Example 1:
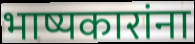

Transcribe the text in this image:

भाष्यकारांना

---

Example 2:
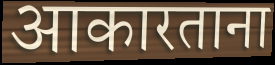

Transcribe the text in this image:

आकारताना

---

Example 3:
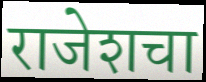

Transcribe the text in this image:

राजेशचा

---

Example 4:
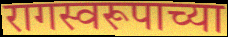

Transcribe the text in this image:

रागस्वरूपाच्या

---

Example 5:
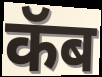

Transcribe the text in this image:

कॅब